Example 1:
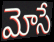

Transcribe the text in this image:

మోసే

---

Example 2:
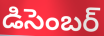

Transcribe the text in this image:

డిసెంబర్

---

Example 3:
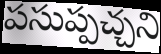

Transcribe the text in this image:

పసుప్పచ్చని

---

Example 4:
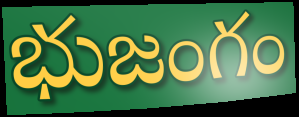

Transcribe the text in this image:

భుజంగం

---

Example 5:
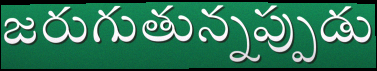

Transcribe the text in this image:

జరుగుతున్నప్పుడు